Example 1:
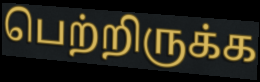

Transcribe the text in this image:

பெற்றிருக்க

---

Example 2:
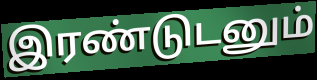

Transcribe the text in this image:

இரண்டுடனும்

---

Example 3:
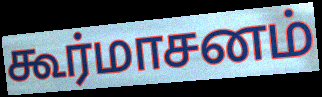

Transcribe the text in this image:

கூர்மாசனம்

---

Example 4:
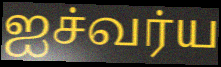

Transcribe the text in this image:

ஐச்வர்ய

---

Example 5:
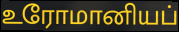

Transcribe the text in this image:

உரோமானியப்